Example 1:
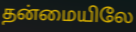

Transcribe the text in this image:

தன்மையிலே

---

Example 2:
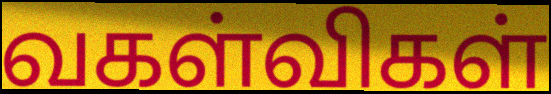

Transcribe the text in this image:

வகள்விகள்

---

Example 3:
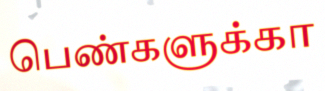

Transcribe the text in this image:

பெண்களுக்கா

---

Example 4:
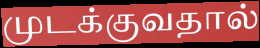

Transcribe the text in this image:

முடக்குவதால்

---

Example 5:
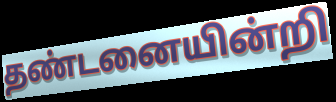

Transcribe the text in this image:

தண்டனையின்றி